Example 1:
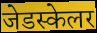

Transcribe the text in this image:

जेडस्केलर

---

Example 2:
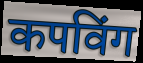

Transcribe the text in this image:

कपविंग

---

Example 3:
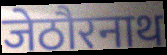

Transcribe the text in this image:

जेठौरनाथ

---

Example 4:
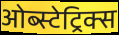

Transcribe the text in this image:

ओब्स्टेट्रिक्स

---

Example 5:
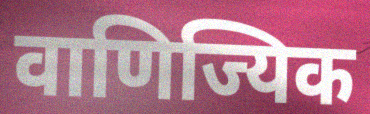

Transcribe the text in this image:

वाणिज्यिक